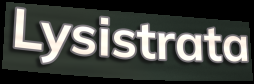
Lysistrata